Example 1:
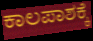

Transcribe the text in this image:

ಕಾಲಪಾಶಕ್ಕೆ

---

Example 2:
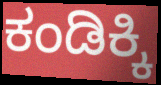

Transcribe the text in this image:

ಕಂಡಿಕ್ಕಿ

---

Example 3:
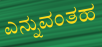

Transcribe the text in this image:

ಎನ್ನುವಂತಹ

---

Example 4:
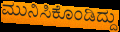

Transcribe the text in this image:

ಮುನಿಸಿಕೊಂಡಿದ್ದು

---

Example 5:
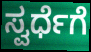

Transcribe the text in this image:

ಸ್ವರ್ಧೆಗೆ